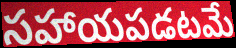
సహాయపడటమే